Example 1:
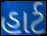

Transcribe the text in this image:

હાર્ટ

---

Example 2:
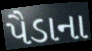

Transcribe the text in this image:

પૈડાના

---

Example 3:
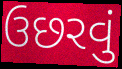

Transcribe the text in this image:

ઉછરવું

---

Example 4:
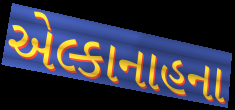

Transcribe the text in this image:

એલ્કાનાહના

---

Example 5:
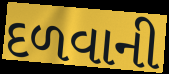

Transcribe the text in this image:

દળવાની